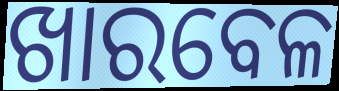
ଖାରବେଳ